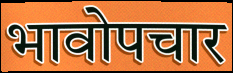
भावोपचार